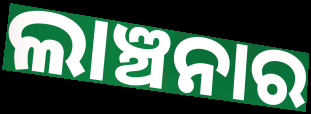
ଲାଞ୍ଚନାର